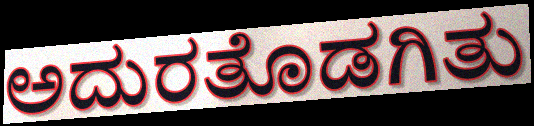
ಅದುರತೊಡಗಿತು